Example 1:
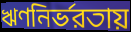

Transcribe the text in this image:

ঋণনির্ভরতায়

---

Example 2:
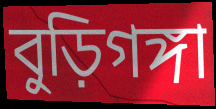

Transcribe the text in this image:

বুড়িগঙ্গা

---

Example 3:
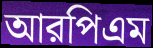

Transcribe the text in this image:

আরপিএম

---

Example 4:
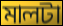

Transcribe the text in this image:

মালটা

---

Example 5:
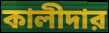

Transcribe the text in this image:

কালীদার